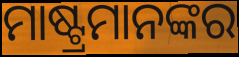
ମାଷ୍ଟ୍ରମାନଙ୍କର